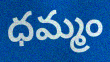
ధమ్మం